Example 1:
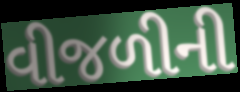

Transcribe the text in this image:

વીજળીની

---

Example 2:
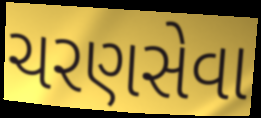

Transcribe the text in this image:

ચરણસેવા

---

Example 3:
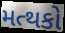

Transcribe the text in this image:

મત્થકો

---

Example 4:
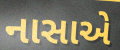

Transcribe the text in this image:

નાસાએ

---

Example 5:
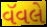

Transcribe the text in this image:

વૅવલે